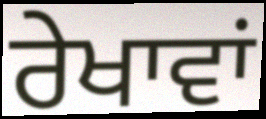
ਰੇਖਾਵਾਂ